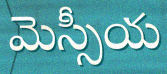
మెస్సీయ